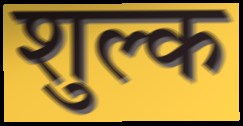
शुल्क